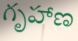
గృహాణ